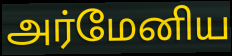
அர்மேனிய